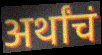
अर्थांचं